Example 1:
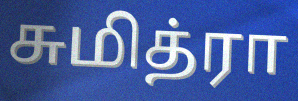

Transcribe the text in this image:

சுமித்ரா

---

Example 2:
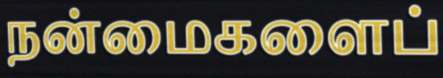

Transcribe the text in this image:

நன்மைகளைப்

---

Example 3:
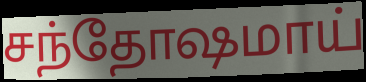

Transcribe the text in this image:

சந்தோஷமாய்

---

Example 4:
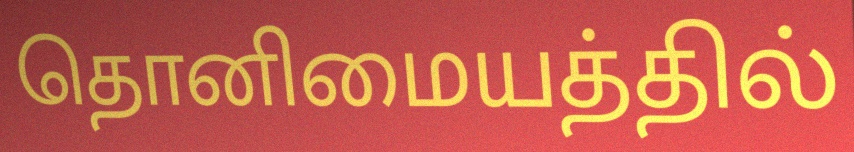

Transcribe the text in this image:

தொனிமையத்தில்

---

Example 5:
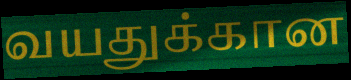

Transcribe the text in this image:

வயதுக்கான